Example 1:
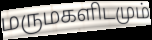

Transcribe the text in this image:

மருமகளிடமும்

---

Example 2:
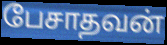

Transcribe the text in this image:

பேசாதவன்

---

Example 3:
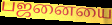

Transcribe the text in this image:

பஜனையை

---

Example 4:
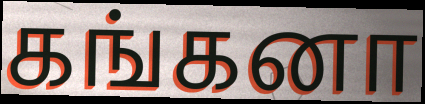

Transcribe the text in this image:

கங்கனா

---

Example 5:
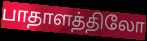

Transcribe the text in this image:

பாதாளத்திலோ